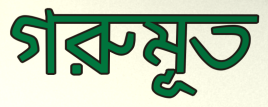
গৰুমূত